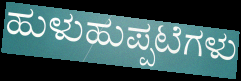
ಹುಳುಹುಪ್ಪಟೆಗಳು